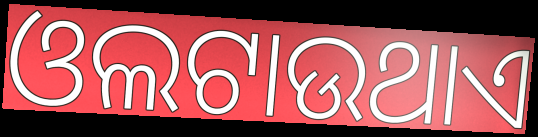
ଓଲଟାଉଥାଏ